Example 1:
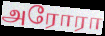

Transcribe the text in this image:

அரோரா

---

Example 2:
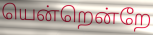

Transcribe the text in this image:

யென்றென்றே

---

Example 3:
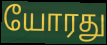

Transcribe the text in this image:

யோரது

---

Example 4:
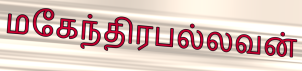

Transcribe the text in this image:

மகேந்திரபல்லவன்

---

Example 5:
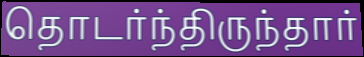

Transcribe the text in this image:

தொடர்ந்திருந்தார்